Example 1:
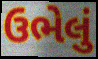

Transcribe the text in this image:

ઉભેલું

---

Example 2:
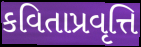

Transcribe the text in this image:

કવિતાપ્રવૃત્તિ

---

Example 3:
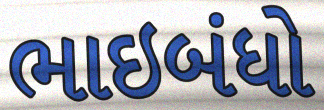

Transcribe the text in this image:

ભાઇબંધો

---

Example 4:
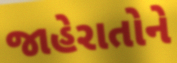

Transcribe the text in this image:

જાહેરાતોને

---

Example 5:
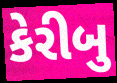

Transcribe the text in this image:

કેરીબુ